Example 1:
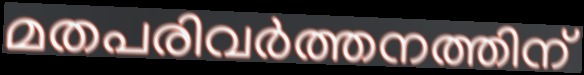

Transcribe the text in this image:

മതപരിവർത്തനത്തിന്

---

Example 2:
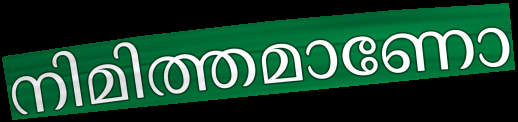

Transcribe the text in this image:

നിമിത്തമാണോ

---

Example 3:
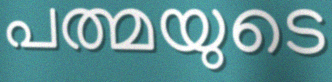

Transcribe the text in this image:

പത്മയുടെ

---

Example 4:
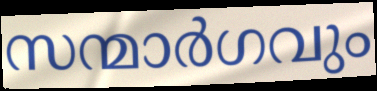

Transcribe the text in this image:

സന്മാർഗവും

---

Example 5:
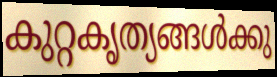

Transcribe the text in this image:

കുറ്റകൃത്യങ്ങൾക്കു